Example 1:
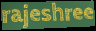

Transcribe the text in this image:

rajeshree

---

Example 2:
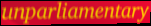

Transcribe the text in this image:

unparliamentary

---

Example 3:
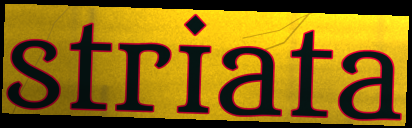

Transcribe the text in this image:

striata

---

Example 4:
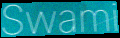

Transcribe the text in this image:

Swami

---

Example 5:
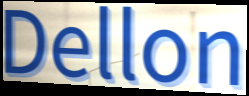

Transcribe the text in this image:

Dellon